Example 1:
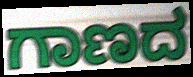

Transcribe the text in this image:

ಗಾಣದ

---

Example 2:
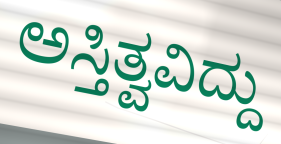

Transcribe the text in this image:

ಅಸ್ತಿತ್ವವಿದ್ದು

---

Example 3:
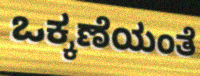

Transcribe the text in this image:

ಒಕ್ಕಣೆಯಂತೆ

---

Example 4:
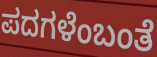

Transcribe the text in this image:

ಪದಗಳೆಂಬಂತೆ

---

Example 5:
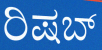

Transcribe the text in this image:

ರಿಷಬ್